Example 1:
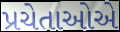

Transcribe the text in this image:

પ્રચેતાઓએ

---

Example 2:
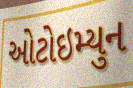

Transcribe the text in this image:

ઓટોઇમ્યુન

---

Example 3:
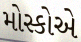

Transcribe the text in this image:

મોસ્કોએ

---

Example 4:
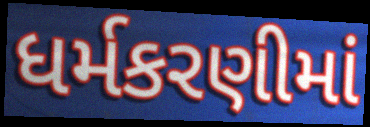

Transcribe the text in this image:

ધર્મકરણીમાં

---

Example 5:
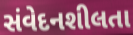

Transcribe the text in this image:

સંવેદનશીલતા